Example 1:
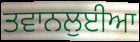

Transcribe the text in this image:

ਤਵਾਨਲੁਈਆ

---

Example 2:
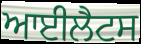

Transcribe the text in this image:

ਆਈਲੈਟਸ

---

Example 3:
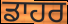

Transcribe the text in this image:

ਡਾਹਰ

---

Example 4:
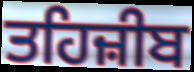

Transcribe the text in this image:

ਤਹਿਜ਼ੀਬ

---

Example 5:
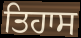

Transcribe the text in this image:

ਤਿਹਾਸ